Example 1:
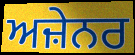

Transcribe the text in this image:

ਅਜ਼ੇਨਰ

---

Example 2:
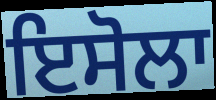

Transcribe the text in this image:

ਇਸੋਲਾ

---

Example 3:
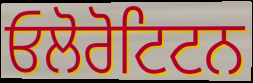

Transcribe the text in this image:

ਓਲੋਰੋਟਿਟਨ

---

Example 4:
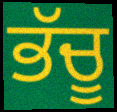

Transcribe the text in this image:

ਭੱਚੂ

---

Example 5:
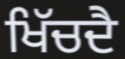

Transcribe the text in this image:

ਖਿੱਚਦੈ